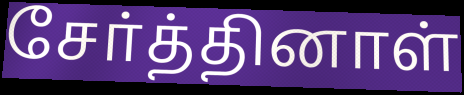
சேர்த்தினாள்